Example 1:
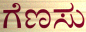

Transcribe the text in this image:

ಗೆಣಸು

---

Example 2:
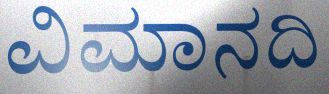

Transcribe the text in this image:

ವಿಮಾನದಿ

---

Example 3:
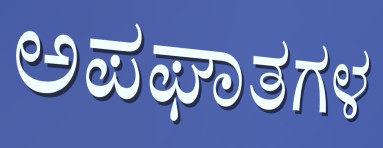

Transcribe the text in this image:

ಅಪಘಾತಗಳ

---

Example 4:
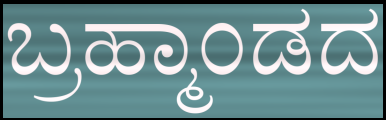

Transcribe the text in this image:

ಬ್ರಹ್ಮಾಂಡದ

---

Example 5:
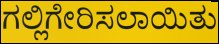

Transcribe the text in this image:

ಗಲ್ಲಿಗೇರಿಸಲಾಯಿತು